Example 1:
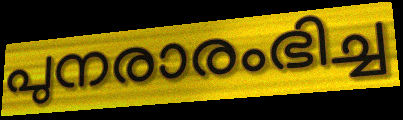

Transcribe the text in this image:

പുനരാരംഭിച്ച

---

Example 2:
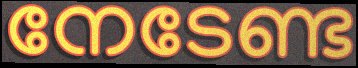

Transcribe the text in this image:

നേടേണ്ട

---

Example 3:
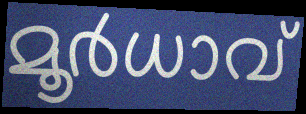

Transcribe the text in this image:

മൂർധാവ്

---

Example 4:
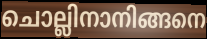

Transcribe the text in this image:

ചൊല്ലിനാനിങ്ങനെ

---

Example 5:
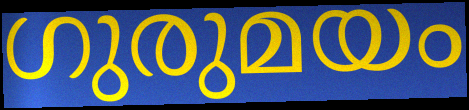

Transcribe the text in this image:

ഗുരുമയം